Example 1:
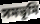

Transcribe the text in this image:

সমভূমি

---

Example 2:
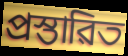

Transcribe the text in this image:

প্ৰস্তাৱিত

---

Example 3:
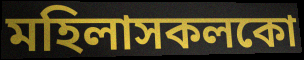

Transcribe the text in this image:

মহিলাসকলকো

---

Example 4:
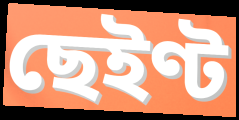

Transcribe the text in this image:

ছেইণ্ট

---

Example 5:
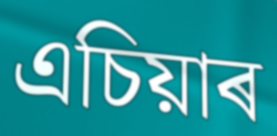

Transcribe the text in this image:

এচিয়াৰ